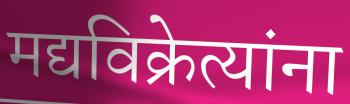
मद्यविक्रेत्यांना